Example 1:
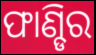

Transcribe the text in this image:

ଫାଣ୍ଡିର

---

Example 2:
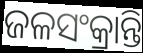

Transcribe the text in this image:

ଜଳସଂକ୍ରାନ୍ତି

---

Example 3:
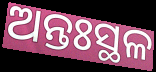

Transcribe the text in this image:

ଅନ୍ତଃସ୍ଥଳ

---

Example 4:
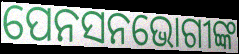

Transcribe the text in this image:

ପେନସନଭୋଗୀଙ୍କ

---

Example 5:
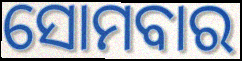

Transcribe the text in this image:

ସୋମବାର